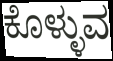
ಕೊಳ್ಳುವ